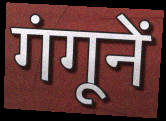
गंगूनें